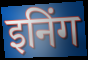
इनिंग